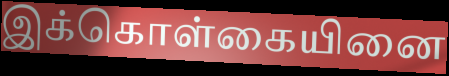
இக்கொள்கையினை